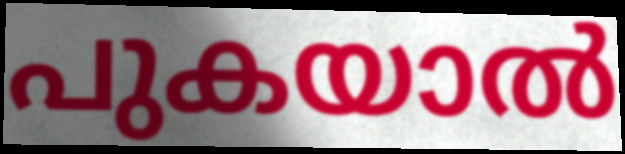
പുകയാൽ